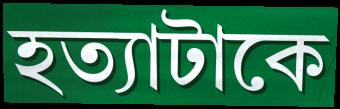
হত্যাটাকে